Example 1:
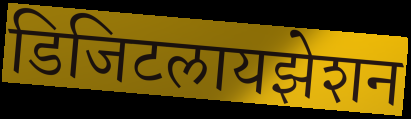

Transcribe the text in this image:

डिजिटलायझेशन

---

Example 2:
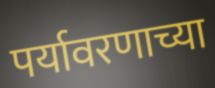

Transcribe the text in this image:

पर्यावरणाच्या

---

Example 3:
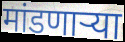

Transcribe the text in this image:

मांडणार्‍या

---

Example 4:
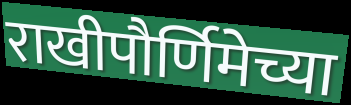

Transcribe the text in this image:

राखीपौर्णिमेच्या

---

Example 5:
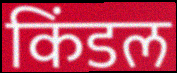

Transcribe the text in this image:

किंडल